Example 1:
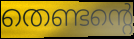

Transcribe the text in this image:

തെണ്ടന്റെ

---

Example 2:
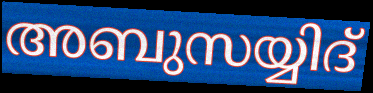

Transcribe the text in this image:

അബുസയ്യിദ്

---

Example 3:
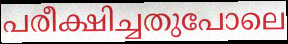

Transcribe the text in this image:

പരീക്ഷിച്ചതുപോലെ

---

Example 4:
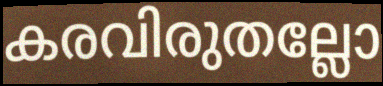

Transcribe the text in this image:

കരവിരുതല്ലോ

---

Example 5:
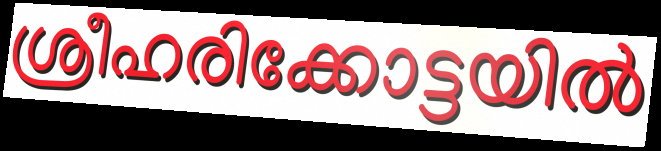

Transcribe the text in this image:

ശ്രീഹരിക്കോട്ടയിൽ